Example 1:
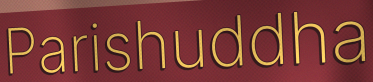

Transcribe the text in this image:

Parishuddha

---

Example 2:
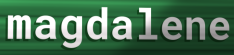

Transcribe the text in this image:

magdalene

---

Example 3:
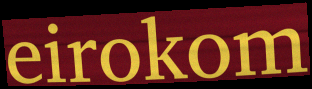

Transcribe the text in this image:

eirokom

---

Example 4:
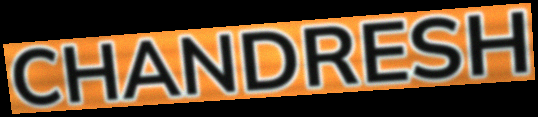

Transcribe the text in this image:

CHANDRESH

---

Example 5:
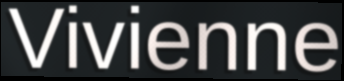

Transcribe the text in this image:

Vivienne